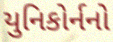
યુનિકોર્નનો